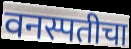
वनस्पतीचा